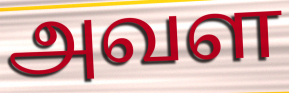
அவள